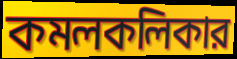
কমলকলিকার